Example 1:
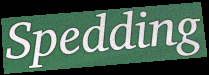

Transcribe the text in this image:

Spedding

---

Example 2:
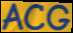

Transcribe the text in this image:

ACG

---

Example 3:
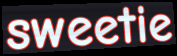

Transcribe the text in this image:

sweetie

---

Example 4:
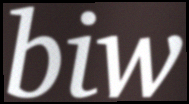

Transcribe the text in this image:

biw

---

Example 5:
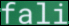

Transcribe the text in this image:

fali